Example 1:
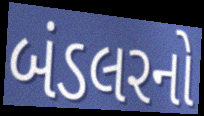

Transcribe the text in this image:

બંડલરનો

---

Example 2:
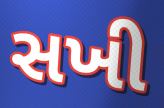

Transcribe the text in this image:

સખી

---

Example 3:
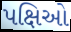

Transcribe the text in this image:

પક્ષિઓ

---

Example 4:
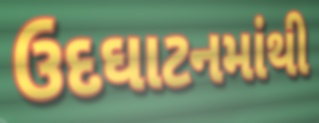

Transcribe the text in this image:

ઉદઘાટનમાંથી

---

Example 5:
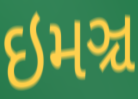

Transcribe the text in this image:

ઇમઞ્ચ